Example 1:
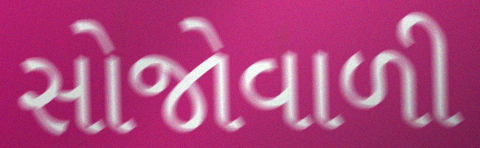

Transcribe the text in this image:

સોજોવાળી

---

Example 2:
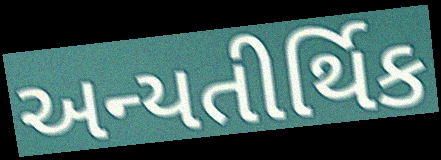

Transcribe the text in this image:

અન્યતીર્થિક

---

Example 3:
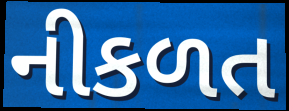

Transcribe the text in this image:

નીકળત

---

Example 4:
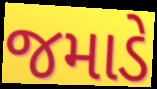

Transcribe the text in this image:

જમાડે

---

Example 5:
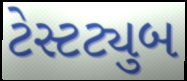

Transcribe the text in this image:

ટેસ્ટટ્યુબ